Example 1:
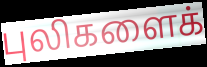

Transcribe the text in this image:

புலிகளைக்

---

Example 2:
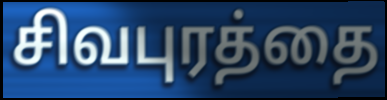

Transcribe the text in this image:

சிவபுரத்தை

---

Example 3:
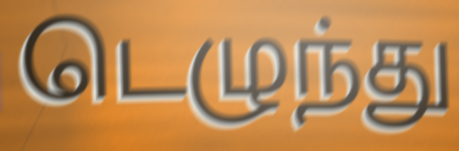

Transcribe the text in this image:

டெழுந்து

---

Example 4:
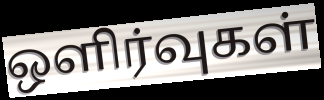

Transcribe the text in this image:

ஒளிர்வுகள்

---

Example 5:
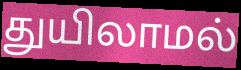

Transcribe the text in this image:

துயிலாமல்